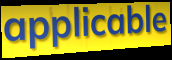
applicable